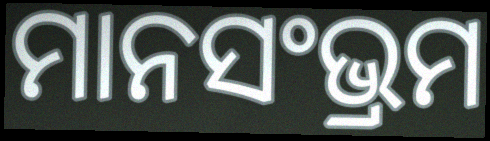
ମାନସଂଭ୍ରମ